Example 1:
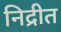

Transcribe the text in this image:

निद्रीत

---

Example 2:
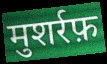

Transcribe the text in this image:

मुशर्रफ़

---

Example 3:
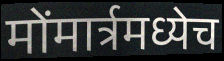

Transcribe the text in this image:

मोंमार्त्रमध्येच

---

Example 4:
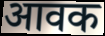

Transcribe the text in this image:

आवक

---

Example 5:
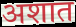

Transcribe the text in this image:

अशात